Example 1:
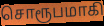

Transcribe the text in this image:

சொரூபமாகி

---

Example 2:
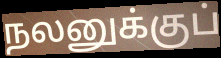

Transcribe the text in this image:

நலனுக்குப்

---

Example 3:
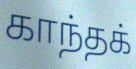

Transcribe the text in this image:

காந்தக்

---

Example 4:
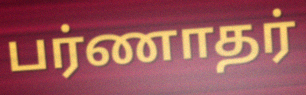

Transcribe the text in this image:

பர்ணாதர்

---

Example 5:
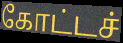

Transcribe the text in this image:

கோட்டச்